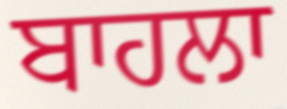
ਬਾਹਲਾ